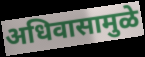
अधिवासामुळे